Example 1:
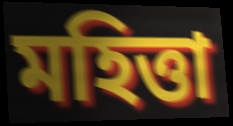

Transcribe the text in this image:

মহিত্তা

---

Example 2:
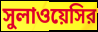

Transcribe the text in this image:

সুলাওয়েসির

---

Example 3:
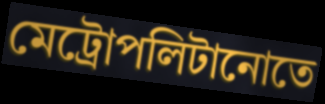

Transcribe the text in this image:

মেট্রোপলিটানোতে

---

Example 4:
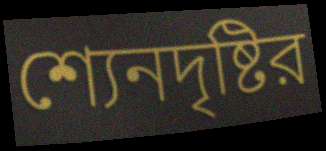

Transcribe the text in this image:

শ্যেনদৃষ্টির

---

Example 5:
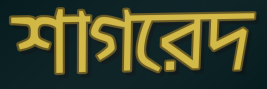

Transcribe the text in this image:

শাগরেদ